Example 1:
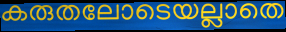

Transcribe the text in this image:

കരുതലോടെയല്ലാതെ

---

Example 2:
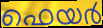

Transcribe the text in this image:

ഫെയർ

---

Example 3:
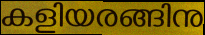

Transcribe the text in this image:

കളിയരങ്ങിനു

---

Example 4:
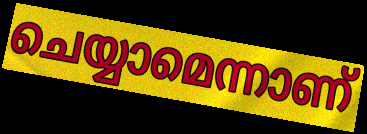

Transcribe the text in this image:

ചെയ്യാമെന്നാണ്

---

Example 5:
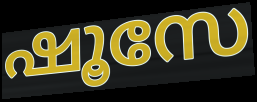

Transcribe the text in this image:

ഷൂസേ